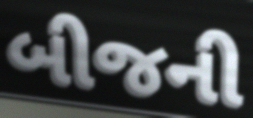
બીજની